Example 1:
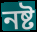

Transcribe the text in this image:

নষ্ট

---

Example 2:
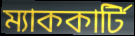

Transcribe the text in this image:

ম্যাককার্টি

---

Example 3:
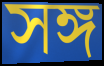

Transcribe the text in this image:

সঙ্গ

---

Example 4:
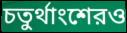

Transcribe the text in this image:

চতুর্থাংশেরও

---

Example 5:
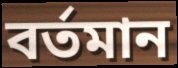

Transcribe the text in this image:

বর্তমান